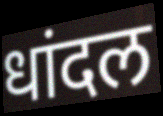
धांदल